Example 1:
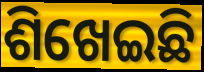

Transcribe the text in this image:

ଶିଖେଇଛି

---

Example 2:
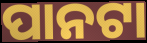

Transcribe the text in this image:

ପାନଟା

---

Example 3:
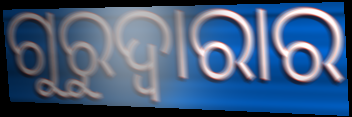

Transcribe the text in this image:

ଗୁରୁଦ୍ୱାରାର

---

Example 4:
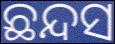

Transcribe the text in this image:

ଛନ୍ଦସ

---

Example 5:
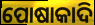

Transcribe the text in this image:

ପୋଷାକାଦି